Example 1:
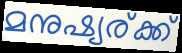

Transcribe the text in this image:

മനുഷ്യര്ക്ക്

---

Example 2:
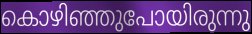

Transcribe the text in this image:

കൊഴിഞ്ഞുപോയിരുന്നു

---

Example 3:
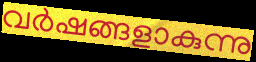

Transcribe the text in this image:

വർഷങ്ങളാകുന്നു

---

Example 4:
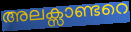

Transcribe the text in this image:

അലക്സാണ്ടറെ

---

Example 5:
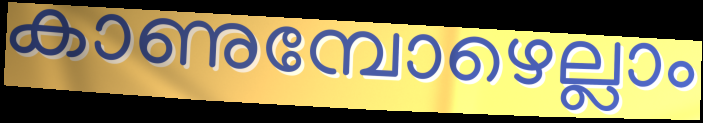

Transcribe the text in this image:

കാണുമ്പോഴെല്ലാം